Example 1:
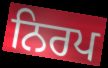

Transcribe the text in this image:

ਨਿਰਪ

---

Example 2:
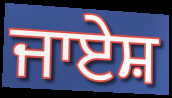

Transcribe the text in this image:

ਜਾਏਸ਼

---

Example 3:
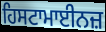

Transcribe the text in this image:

ਹਿਸਟਾਮਾਈਨਜ਼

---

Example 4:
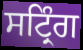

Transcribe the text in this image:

ਸਟ੍ਰਿੰਗ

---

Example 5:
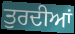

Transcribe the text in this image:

ਤੁਰਦੀਆਂ